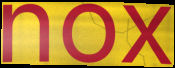
nox